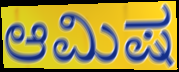
ಆಮಿಷ